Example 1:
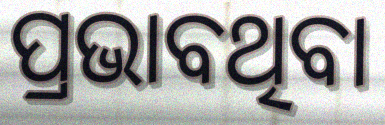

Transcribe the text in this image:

ପ୍ରଭାବଥିବା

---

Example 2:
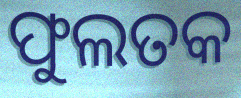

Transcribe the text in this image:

ଫୁଲତକ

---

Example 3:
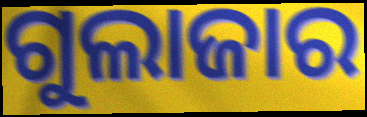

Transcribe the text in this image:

ଗୁଲାଜାର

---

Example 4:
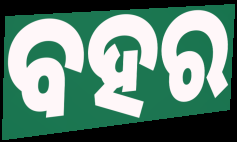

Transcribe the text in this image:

ବହର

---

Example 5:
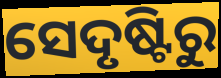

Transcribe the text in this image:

ସେଦୃଷ୍ଟିରୁ